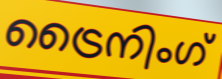
ട്രൈനിംഗ്